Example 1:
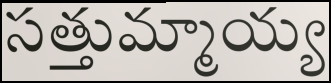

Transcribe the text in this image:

సత్తుమ్మాయ్య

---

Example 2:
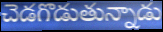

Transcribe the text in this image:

చెడగొడుతున్నాడు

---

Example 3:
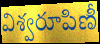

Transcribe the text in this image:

విశ్వరూపిణీ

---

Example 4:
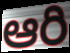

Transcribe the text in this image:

ఆరి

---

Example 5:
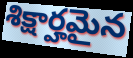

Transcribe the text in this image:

శిక్షార్హమైన